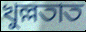
খুল্লতাত